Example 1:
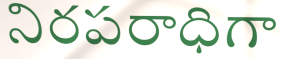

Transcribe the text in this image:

నిరపరాధిగా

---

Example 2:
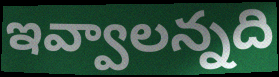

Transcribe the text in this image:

ఇవ్వాలన్నది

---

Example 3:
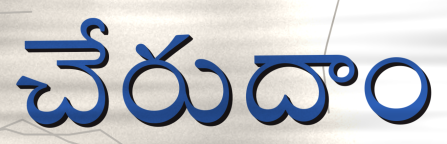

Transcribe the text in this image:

చేరుదాం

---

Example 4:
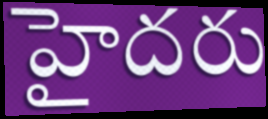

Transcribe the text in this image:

హైదరు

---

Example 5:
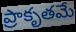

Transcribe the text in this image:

ప్రాకృతమే